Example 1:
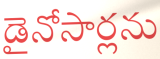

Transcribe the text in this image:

డైనోసార్లను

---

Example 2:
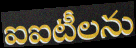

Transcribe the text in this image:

ఐఐటీలను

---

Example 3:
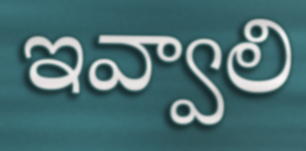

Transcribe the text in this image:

ఇవ్వాలి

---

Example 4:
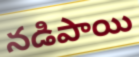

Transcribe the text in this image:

నడిపాయి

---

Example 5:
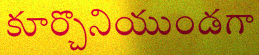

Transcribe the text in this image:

కూర్చొనియుండగా